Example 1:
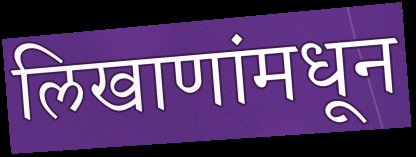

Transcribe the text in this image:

लिखाणांमधून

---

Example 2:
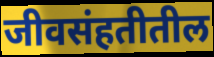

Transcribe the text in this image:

जीवसंहतीतील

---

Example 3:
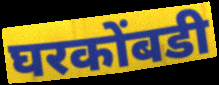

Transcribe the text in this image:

घरकोंबडी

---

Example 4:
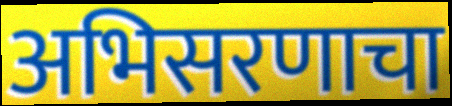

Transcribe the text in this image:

अभिसरणाचा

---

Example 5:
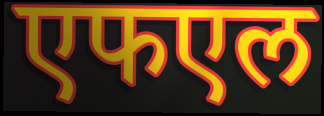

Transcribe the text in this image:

एफएल